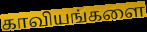
காவியங்களை